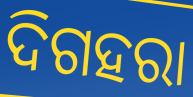
ଦିଗହରା